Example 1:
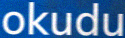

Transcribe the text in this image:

okudu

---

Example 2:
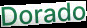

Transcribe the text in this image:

Dorado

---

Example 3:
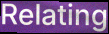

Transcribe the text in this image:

Relating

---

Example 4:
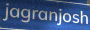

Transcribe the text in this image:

jagranjosh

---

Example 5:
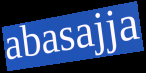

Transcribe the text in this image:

abasajja